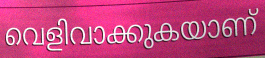
വെളിവാക്കുകയാണ്